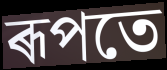
ৰূপতে